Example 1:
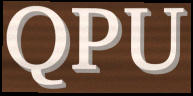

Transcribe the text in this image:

QPU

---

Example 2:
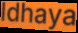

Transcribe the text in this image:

Idhaya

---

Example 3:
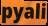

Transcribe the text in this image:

pyali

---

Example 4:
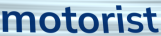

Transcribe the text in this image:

motorist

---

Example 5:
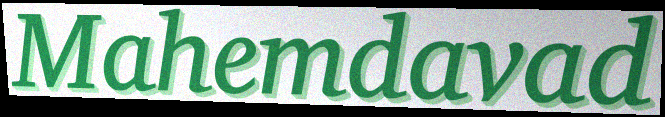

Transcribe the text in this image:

Mahemdavad